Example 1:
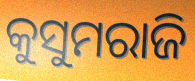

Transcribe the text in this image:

କୁସୁମରାଜି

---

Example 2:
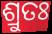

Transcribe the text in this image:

ଶ୍ରୁତଃ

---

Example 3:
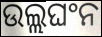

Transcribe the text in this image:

ଉଲ୍ଲଘଂନ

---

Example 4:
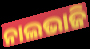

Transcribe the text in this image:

ନାଲଭାଜି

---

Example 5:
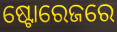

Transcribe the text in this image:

ଷ୍ଟୋରେଜରେ